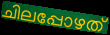
ചിലപ്പോഴത്